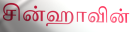
சின்ஹாவின்